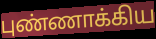
புண்ணாக்கிய